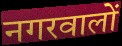
नगरवालों